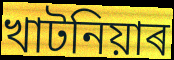
খাটনিয়াৰ